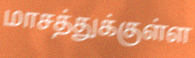
மாசத்துக்குள்ள